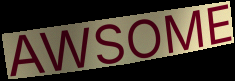
AWSOME